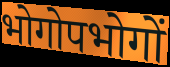
भोगोपभोगों